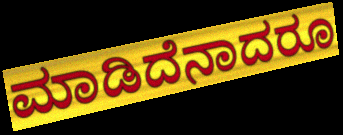
ಮಾಡಿದೆನಾದರೂ